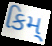
કિમ્